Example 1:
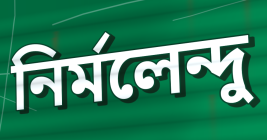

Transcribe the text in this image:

নির্মলেন্দু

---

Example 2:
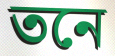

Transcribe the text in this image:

তনে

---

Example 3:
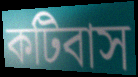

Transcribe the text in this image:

কটিবাস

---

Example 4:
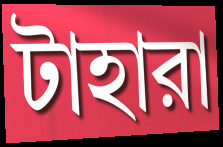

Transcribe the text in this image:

টাহারা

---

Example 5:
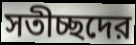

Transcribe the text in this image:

সতীচ্ছদের